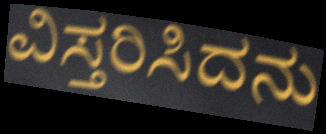
ವಿಸ್ತರಿಸಿದನು